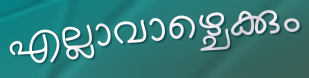
എല്ലാവാഴ്ചെക്കും